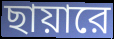
ছায়ারে